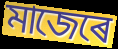
মাজেৰে